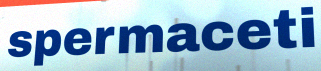
spermaceti